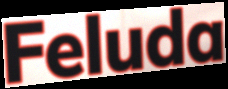
Feluda